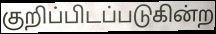
குறிப்பிடப்படுகின்ற